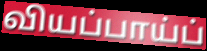
வியப்பாய்ப்